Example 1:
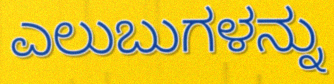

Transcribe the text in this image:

ಎಲುಬುಗಳನ್ನು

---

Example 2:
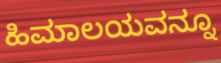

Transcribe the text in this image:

ಹಿಮಾಲಯವನ್ನೂ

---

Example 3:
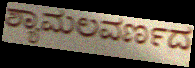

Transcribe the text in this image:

ಶ್ಯಾಮಲವರ್ಣದ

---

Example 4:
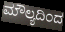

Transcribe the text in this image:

ಮೌಲ್ಯದಿಂದ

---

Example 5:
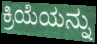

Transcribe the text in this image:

ಕ್ರಿಯೆಯನ್ನು